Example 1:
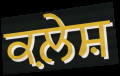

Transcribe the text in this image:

ਕਲ਼ੇਸ਼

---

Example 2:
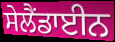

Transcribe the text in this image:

ਸੇਲੈਂਡਾਈਨ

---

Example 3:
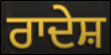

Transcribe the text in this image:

ਰਾਦੇਸ਼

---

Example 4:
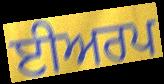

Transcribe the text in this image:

ਈਅਰਪ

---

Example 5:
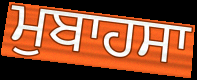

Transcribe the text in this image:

ਮੁਬਾਹਸਾ